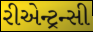
રીએન્ટ્રન્સી